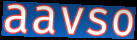
aavso